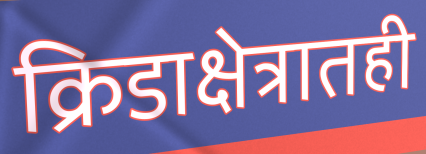
क्रिडाक्षेत्रातही